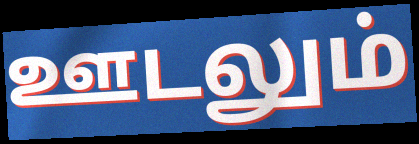
ஊடலும்